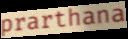
prarthana